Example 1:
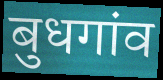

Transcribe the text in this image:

बुधगांव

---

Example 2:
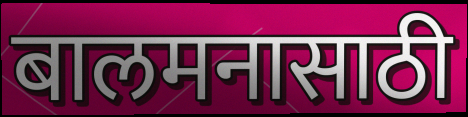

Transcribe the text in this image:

बालमनासाठी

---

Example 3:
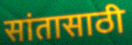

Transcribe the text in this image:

सांतासाठी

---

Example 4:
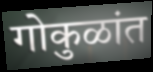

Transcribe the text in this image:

गोकुळांत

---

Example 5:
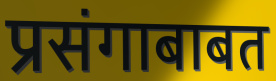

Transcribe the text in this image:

प्रसंगाबाबत